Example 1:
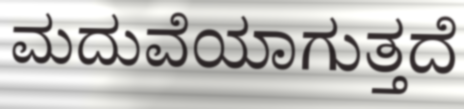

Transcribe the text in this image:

ಮದುವೆಯಾಗುತ್ತದೆ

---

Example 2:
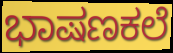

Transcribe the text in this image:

ಭಾಷಣಕಲೆ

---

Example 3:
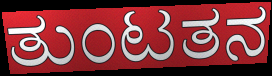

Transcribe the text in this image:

ತುಂಟತನ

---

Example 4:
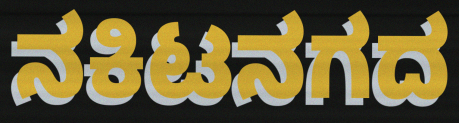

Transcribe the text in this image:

ನಕಿಟನಗದ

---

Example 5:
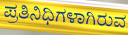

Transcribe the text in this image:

ಪ್ರತಿನಿಧಿಗಳಾಗಿರುವ